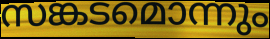
സങ്കടമൊന്നും